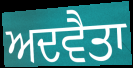
ਅਦਵੈਤਾ